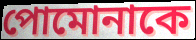
পোমোনাকে